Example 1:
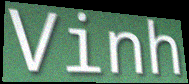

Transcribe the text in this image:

Vinh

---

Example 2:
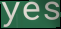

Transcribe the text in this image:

yes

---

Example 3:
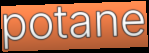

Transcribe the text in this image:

potane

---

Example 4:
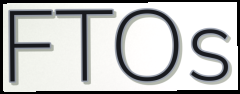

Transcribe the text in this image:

FTOs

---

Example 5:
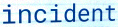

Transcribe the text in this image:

incident